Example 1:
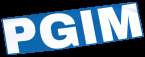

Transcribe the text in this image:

PGIM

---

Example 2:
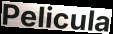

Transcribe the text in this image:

Pelicula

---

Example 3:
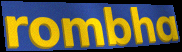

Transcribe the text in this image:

rombha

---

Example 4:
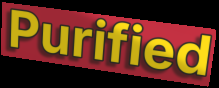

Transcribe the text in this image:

Purified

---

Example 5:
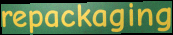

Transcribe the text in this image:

repackaging